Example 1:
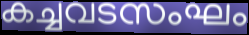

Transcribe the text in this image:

കച്ചവടസംഘം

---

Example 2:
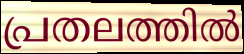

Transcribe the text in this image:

പ്രതലത്തിൽ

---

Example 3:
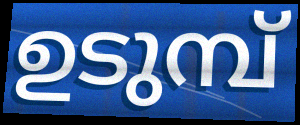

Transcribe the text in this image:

ഉടുമ്പ്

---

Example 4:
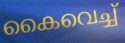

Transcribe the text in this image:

കൈവെച്ച്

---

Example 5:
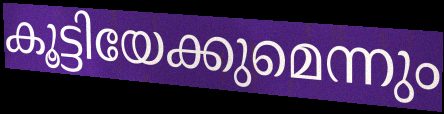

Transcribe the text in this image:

കൂട്ടിയേക്കുമെന്നും